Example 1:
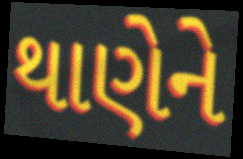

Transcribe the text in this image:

થાણેને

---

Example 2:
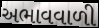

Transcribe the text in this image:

અભાવવાળી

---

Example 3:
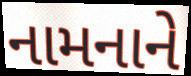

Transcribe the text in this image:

નામનાને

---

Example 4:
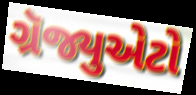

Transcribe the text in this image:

ગ્રૅજ્યુએટો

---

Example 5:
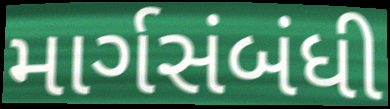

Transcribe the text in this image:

માર્ગસંબંધી